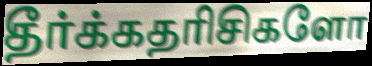
தீர்க்கதரிசிகளோ